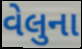
વેલુના